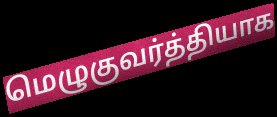
மெழுகுவர்த்தியாக